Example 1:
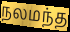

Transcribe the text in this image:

நலமந்த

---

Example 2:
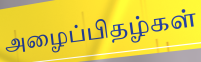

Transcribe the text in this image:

அழைப்பிதழ்கள்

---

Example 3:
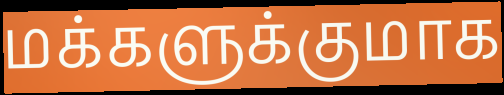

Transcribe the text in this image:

மக்களுக்குமாக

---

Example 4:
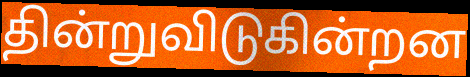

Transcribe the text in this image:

தின்றுவிடுகின்றன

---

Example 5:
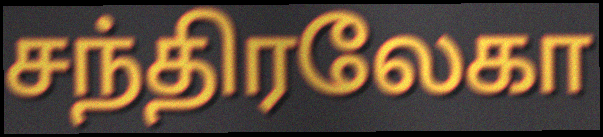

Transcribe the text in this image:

சந்திரலேகா